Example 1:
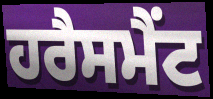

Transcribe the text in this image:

ਹਰੈਸਮੈਂਟ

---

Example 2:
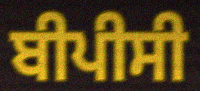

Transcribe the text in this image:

ਬੀਪੀਸੀ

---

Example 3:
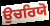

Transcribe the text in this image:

ਉਚਰਿਯੋ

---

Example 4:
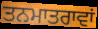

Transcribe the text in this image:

ਤਨਮਾਤਰਾਵਾਂ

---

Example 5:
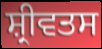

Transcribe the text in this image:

ਸ਼੍ਰੀਵਤਸ